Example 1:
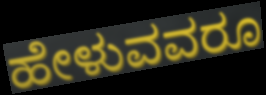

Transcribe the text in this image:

ಹೇಳುವವರೂ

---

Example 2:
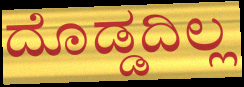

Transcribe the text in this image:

ದೊಡ್ಡದಿಲ್ಲ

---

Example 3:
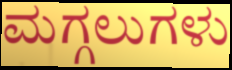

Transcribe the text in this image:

ಮಗ್ಗಲುಗಳು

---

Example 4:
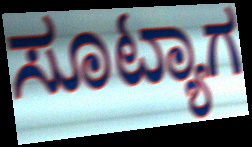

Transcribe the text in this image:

ಸೂಟ್ಯಾಗ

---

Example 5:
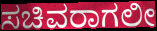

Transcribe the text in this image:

ಸಚಿವರಾಗಲೀ